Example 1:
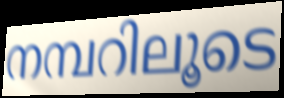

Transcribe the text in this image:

നമ്പറിലൂടെ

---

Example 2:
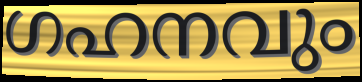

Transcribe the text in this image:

ഗഹനവും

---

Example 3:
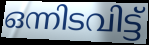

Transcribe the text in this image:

ഒന്നിടവിട്ട്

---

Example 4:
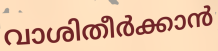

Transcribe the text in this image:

വാശിതീർക്കാൻ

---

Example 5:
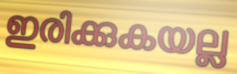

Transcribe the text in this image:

ഇരിക്കുകയല്ല